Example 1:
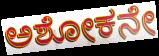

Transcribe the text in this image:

ಅಶೋಕನೇ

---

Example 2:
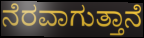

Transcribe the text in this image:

ನೆರವಾಗುತ್ತಾನೆ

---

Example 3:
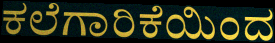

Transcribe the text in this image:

ಕಲೆಗಾರಿಕೆಯಿಂದ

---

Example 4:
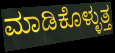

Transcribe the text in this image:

ಮಾಡಿಕೊಳ್ಳುತ್ತ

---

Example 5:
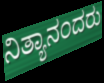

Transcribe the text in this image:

ನಿತ್ಯಾನಂದರು